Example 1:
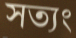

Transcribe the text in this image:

সত্যং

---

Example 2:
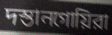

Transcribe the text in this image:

দস্তানগোয়িরা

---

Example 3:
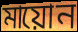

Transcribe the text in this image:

মায়োন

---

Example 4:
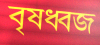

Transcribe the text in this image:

বৃষধ্বজ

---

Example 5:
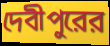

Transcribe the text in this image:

দেবীপুরের